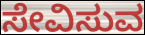
ಸೇವಿಸುವ